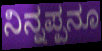
ನಿನ್ನಪ್ಪನೂ